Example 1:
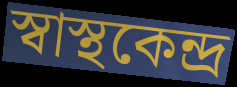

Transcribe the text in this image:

স্বাস্থকেন্দ্র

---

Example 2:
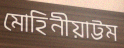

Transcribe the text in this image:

মোহিনীয়াট্টম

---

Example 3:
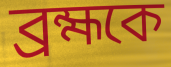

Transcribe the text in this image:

ব্রহ্মকে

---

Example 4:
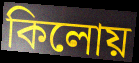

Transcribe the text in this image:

কিলোয়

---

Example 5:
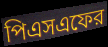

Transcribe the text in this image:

পিএসএফের